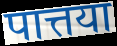
पात्तया